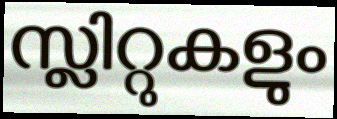
സ്ലിറ്റുകളും